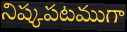
నిష్కపటముగా